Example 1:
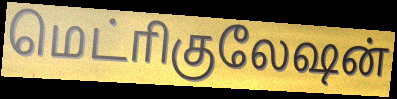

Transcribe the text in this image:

மெட்ரிகுலேஷன்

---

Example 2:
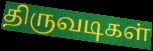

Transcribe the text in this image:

திருவடிகள்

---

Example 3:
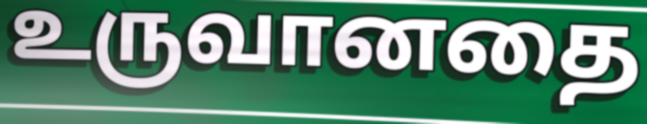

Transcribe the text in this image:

உருவானதை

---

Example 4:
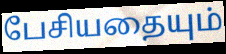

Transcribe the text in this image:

பேசியதையும்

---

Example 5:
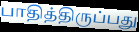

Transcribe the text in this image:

பாதித்திருப்பது